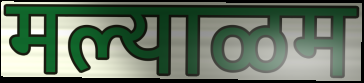
मल्याळम